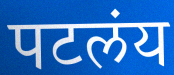
पटलंय